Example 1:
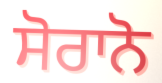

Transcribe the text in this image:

ਸੋਰਾਨੋ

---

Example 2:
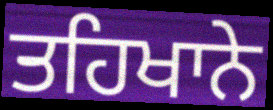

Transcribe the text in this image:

ਤਹਿਖਾਨੇ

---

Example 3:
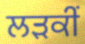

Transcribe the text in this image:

ਲੜਕੀਂ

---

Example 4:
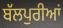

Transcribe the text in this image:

ਬੱਲਪੁਰੀਆਂ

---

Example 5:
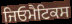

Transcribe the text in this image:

ਜਿਓਮੈਟਿਕਸ